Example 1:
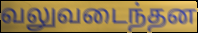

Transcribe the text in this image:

வலுவடைந்தன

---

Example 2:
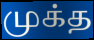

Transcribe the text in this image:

முக்த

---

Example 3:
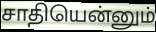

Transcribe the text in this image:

சாதியென்னும்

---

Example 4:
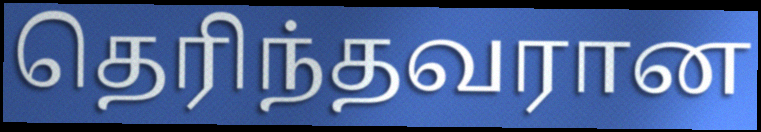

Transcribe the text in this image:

தெரிந்தவரான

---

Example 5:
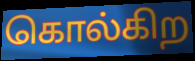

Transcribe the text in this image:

கொல்கிற